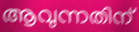
ആവുന്നതിന്